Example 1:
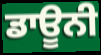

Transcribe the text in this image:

ਡਾਊਨੀ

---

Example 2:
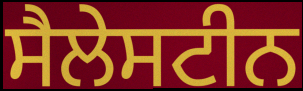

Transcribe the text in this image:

ਸੈਲੇਸਟੀਨ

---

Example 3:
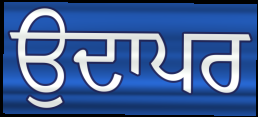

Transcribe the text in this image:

ਉਦਾਪਰ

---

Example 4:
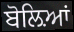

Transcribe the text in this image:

ਬੋਲ਼ਿਆਂ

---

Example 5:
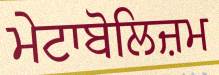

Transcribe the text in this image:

ਮੇਟਾਬੋਲਿਜ਼ਮ